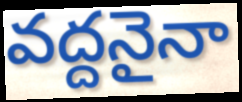
వద్దనైనా